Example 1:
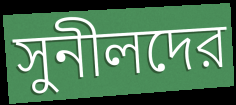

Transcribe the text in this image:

সুনীলদের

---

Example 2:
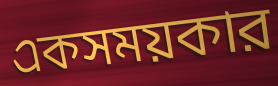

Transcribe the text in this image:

একসময়কার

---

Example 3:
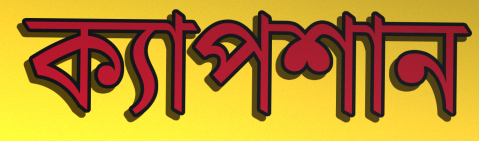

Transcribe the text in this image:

ক্যাপশান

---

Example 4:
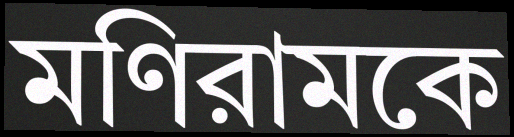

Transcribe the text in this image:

মণিরামকে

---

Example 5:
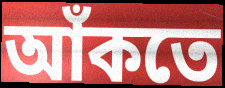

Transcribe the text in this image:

আঁকতে